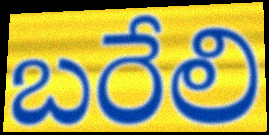
బరేలి